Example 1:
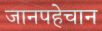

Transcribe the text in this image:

जानपहेचान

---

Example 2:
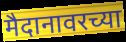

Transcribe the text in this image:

मैदानावरच्या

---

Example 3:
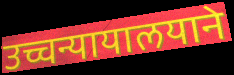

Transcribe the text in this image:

उच्चन्यायालयाने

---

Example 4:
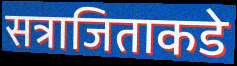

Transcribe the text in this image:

सत्राजिताकडे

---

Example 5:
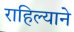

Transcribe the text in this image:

राहिल्याने